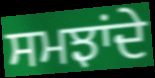
ਸਮਝਾਂਦੇ